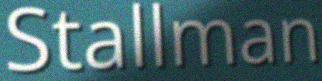
Stallman